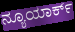
ನ್ಯೂಯಾರ್ಕ್